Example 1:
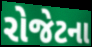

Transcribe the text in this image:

રોજેટના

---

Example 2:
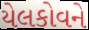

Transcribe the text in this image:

યેલકોવને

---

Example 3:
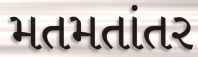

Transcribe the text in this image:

મતમતાંતર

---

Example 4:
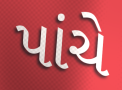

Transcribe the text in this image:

પાંચે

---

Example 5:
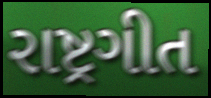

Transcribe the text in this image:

રાષ્ટ્રગીત